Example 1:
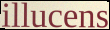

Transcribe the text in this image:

illucens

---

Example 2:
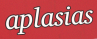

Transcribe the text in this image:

aplasias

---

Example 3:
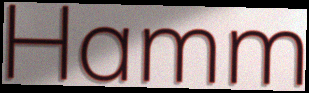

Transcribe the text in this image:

Hamm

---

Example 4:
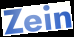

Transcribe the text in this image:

Zein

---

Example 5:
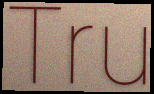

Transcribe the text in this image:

Tru